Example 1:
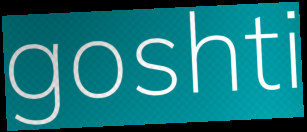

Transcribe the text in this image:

goshti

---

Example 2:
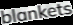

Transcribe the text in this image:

blankets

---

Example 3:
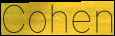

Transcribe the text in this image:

Cohen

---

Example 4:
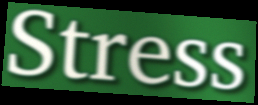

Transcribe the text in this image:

Stress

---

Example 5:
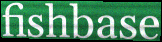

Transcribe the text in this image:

fishbase